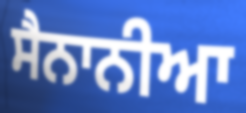
ਸੈਨਾਨੀਆ